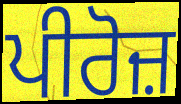
ਪੀਰੋਜ਼